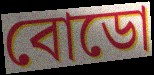
বোডো